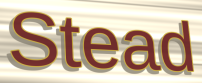
Stead